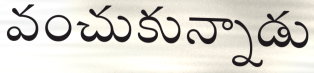
వంచుకున్నాడు